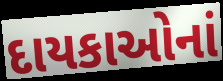
દાયકાઓનાં